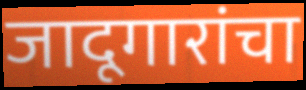
जादूगारांचा